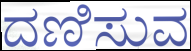
ದಣಿಸುವ